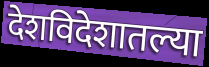
देशविदेशातल्या